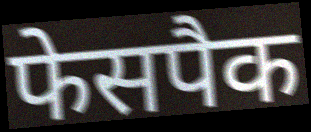
फेसपैक